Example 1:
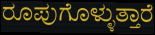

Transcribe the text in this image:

ರೂಪುಗೊಳ್ಳುತ್ತಾರೆ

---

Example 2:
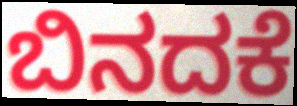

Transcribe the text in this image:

ಬಿನದಕೆ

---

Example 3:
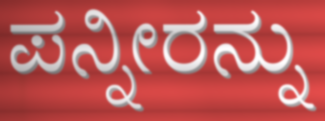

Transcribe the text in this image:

ಪನ್ನೀರನ್ನು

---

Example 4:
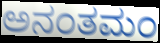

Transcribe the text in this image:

ಅನಂತಮಂ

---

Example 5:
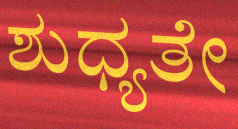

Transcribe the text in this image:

ಶುಧ್ಯತೇ